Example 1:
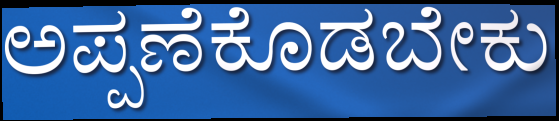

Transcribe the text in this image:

ಅಪ್ಪಣೆಕೊಡಬೇಕು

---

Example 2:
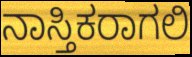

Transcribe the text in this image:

ನಾಸ್ತಿಕರಾಗಲಿ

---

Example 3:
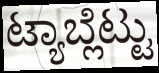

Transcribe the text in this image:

ಟ್ಯಾಬ್ಲೆಟ್ಟು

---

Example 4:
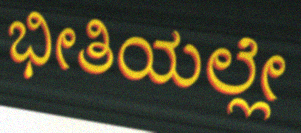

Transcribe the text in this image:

ಭೀತಿಯಲ್ಲೇ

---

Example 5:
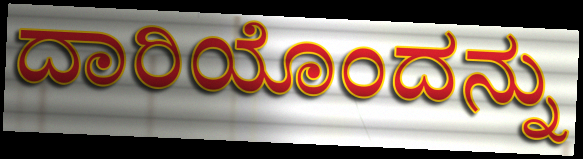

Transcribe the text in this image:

ದಾರಿಯೊಂದನ್ನು